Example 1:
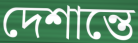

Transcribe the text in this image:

দেশান্তে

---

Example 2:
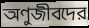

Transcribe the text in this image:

অণুজীবদের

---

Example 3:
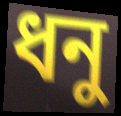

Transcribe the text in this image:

ধনু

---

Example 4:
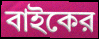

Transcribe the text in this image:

বাইকের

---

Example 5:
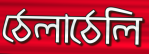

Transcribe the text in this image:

ঠেলাঠেলি